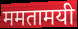
ममतामयी